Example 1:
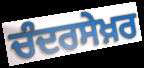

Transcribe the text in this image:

ਚੰਦਰਸੇਖ਼ਰ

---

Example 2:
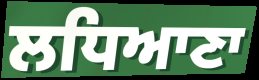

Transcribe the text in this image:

ਲਧਿਆਣਾ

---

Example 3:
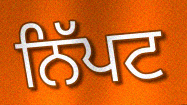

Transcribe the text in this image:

ਨਿੱਪਟ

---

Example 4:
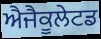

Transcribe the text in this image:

ਐਜੈਕੂਲੇਟਡ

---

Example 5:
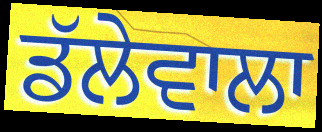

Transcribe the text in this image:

ਡੱਲੇਵਾਲਾ